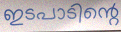
ഇടപാടിന്റെ